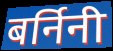
बर्निनी